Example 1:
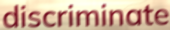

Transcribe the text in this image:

discriminate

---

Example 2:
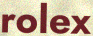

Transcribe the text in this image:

rolex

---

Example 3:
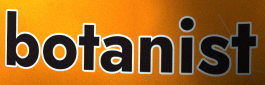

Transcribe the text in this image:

botanist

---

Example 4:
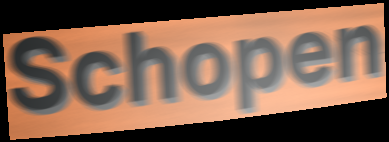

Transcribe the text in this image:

Schopen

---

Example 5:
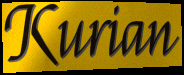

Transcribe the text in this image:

Kurian